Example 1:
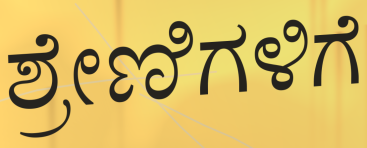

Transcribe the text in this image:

ಶ್ರೇಣಿಗಳಿಗೆ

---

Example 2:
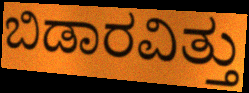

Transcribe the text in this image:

ಬಿಡಾರವಿತ್ತು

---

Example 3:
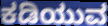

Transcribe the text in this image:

ಕಡಿಯುವ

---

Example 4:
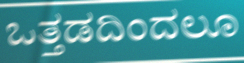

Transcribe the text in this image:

ಒತ್ತಡದಿಂದಲೂ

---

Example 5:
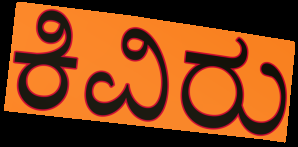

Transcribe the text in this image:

ಕಿವಿರು